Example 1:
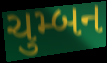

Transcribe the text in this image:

ચુમ્બન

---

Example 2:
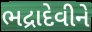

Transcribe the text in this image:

ભદ્રાદેવીને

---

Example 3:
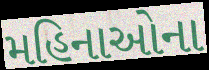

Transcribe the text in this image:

મહિનાઓના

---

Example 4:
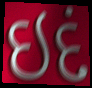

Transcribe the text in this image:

ઇદં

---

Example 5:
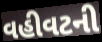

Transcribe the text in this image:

વહીવટની